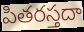
పితరస్తదా